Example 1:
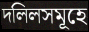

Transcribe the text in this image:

দলিলসমূহে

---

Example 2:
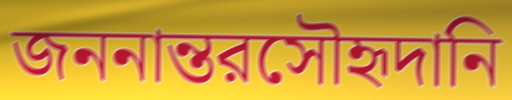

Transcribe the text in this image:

জননান্তরসৌহৃদানি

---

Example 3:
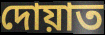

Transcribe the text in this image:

দোয়াত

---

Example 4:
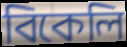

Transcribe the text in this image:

বিকেলি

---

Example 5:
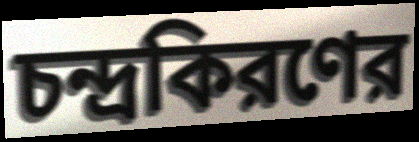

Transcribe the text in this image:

চন্দ্রকিরণের